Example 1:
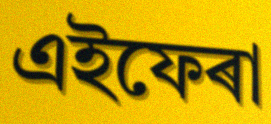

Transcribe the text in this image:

এইফেৰা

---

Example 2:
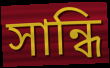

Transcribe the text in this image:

সান্ধি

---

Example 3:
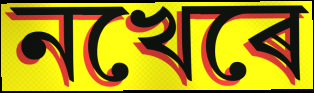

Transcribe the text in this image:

নখেৰে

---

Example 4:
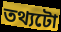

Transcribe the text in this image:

তথ্যটো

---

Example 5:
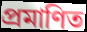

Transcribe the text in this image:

প্ৰমাণিত